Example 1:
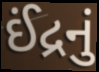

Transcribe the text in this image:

ઈંદ્રનું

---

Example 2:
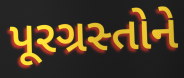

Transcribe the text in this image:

પૂરગ્રસ્તોને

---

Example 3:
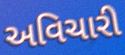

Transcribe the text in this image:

અવિચારી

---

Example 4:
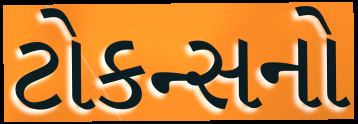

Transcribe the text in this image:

ટોકન્સનો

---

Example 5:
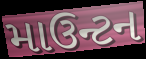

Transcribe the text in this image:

માઉન્ટન